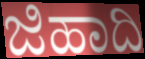
ಜಿಹಾದಿ